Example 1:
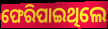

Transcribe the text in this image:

ଫେରିପାଇଥିଲେ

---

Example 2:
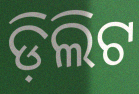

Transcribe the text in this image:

ଡ଼ିଲିଟ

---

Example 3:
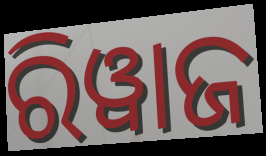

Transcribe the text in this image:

ରିୱାଜ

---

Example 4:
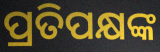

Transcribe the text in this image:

ପ୍ରତିପକ୍ଷଙ୍କ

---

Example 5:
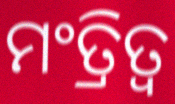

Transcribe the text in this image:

ମଂତ୍ରିତ୍ୱ